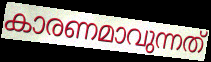
കാരണമാവുന്നത്